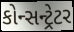
કોન્સન્ટ્રેટર